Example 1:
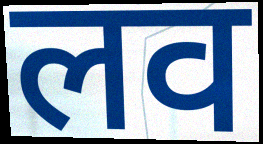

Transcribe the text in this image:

लव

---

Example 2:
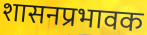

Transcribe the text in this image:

शासनप्रभावक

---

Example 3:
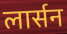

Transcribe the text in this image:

लार्सन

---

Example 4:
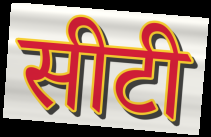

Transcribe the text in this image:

सीटी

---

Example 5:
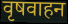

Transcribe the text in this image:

वृषवाहन